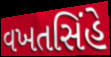
વખતસિંહે